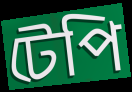
টেপি